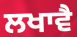
ਲਖਾਵੈ